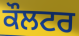
ਕੌਲਟਰ